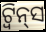
ଟ୍ବିନ୍‌ସ